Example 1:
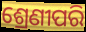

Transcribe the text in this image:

ଶ୍ରେଣୀପରି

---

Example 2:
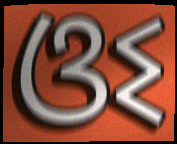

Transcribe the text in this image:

ଓଽ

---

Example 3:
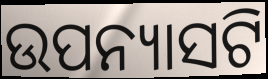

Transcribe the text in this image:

ଉପନ୍ୟାସଟି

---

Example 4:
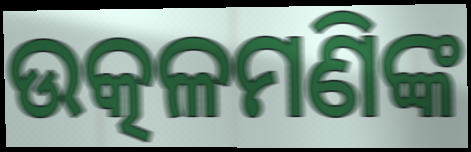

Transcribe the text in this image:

ଉତ୍କଳମଣିଙ୍କ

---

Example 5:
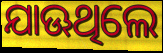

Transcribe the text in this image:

ଯାଊଥିଲେ